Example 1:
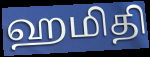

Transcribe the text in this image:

ஹமிதி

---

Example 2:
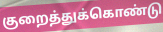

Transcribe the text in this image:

குறைத்துக்கொண்டு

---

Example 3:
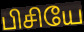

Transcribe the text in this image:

பிசியே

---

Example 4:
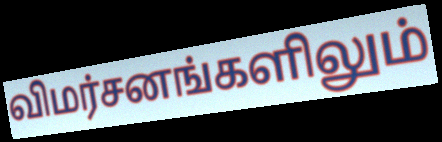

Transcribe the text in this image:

விமர்சனங்களிலும்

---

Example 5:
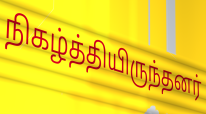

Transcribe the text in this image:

நிகழ்த்தியிருந்தனர்